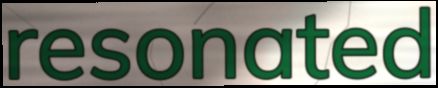
resonated